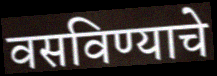
वसविण्याचे